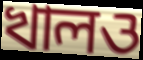
খালও